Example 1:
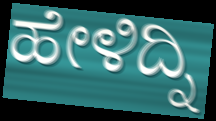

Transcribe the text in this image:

ಹೇಳಿದ್ನಿ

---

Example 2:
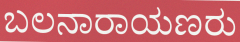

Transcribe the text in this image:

ಬಲನಾರಾಯಣರು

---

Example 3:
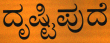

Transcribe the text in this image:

ದೃಷ್ಟಿಪುದೆ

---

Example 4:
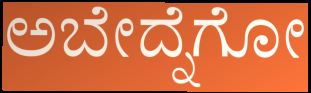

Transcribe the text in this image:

ಅಬೇದ್ನೆಗೋ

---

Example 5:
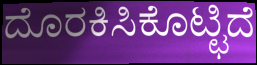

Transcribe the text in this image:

ದೊರಕಿಸಿಕೊಟ್ಟಿದೆ